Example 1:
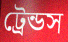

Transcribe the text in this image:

ট্রেন্ডস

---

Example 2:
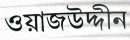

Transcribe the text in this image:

ওয়াজউদ্দীন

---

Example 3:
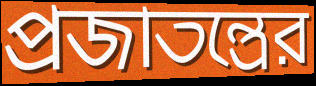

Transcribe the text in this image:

প্রজাতন্ত্রের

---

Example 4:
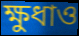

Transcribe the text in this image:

ক্ষুধাও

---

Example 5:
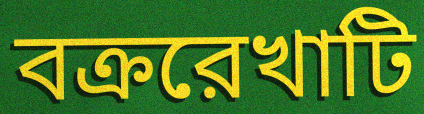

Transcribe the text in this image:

বক্ররেখাটি